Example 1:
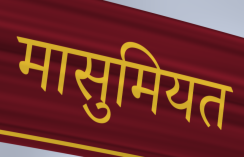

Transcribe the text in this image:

मासुमियत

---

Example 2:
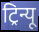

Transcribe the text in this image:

ट्रिन्यू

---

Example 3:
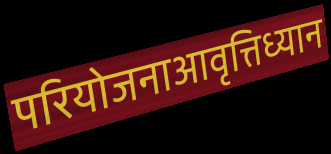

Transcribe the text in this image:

परियोजनाआवृत्तिध्यान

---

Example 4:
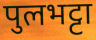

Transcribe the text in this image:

पुलभट्टा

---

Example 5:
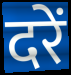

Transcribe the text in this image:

दरें